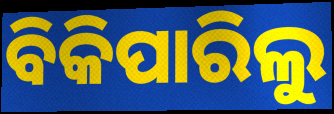
ବିକିପାରିଲୁ